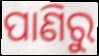
ପାଣିରୁ